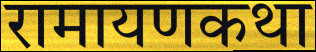
रामायणकथा